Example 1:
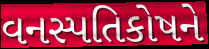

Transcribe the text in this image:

વનસ્પતિકોષને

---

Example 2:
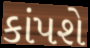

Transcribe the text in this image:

કાંપશે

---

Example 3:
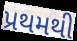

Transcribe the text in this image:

પ્રથમથી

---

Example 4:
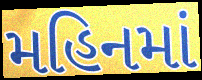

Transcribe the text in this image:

મહિનમાં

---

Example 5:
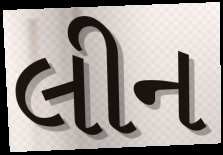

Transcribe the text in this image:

લીન